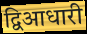
द्विआधारी